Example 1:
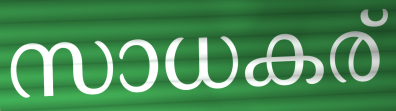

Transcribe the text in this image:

സാധകര്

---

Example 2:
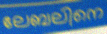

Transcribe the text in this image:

ലേബലിനെ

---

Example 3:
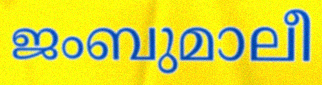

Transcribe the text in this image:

ജംബുമാലീ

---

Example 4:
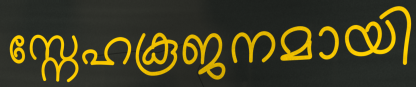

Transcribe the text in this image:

സ്നേഹകൂജനമായി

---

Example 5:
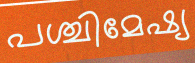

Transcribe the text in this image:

പശ്ചിമേഷ്യ